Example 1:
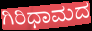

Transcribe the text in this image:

ಗಿರಿಧಾಮದ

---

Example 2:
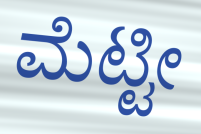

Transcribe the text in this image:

ಮೆಟ್ಟೀ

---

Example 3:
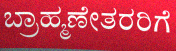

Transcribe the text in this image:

ಬ್ರಾಹ್ಮಣೇತರರಿಗೆ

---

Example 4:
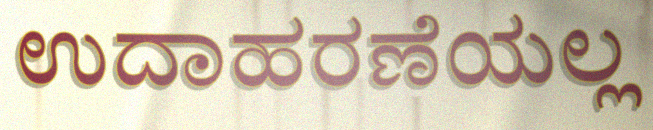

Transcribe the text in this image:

ಉದಾಹರಣೆಯಲ್ಲ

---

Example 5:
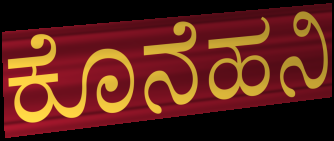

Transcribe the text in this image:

ಕೊನೆಹನಿ